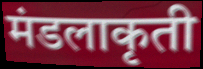
मंडलाकृती